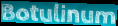
Botulinum